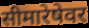
सीमारेषेवर